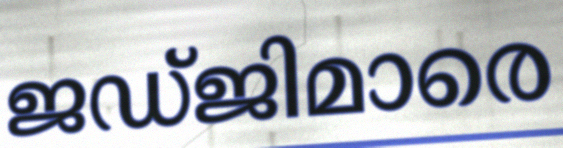
ജഡ്ജിമാരെ